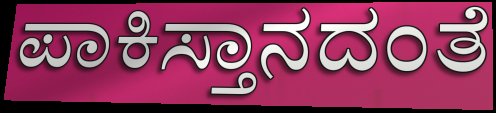
ಪಾಕಿಸ್ತಾನದಂತೆ